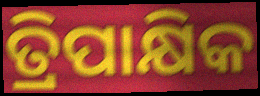
ତ୍ରିପାକ୍ଷିକ